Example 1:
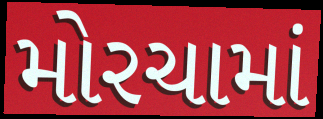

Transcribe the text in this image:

મોરચામાં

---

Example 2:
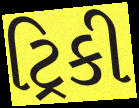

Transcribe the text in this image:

ટ્રિકી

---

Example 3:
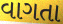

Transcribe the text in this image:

વાગતા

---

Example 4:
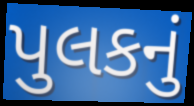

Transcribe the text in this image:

પુલકનું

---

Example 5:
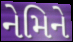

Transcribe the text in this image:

નેમિને